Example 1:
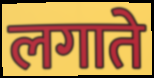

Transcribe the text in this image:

लगाते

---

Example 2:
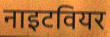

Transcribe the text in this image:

नाइटवियर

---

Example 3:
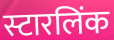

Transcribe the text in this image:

स्‍टारलिंक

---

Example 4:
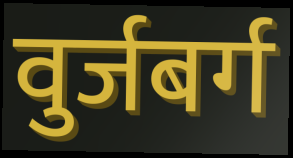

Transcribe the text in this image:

वुर्जबर्ग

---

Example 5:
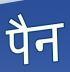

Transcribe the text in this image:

पैन